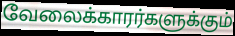
வேலைக்காரர்களுக்கும்